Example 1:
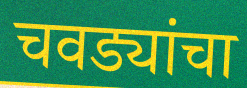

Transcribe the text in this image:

चवड्यांचा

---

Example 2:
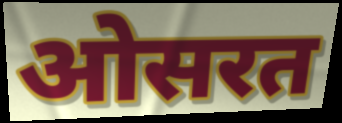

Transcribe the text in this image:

ओसरत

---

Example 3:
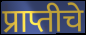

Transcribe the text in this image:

प्राप्तीचे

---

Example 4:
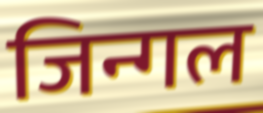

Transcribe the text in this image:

जिन्गल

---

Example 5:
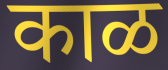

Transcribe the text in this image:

काळ